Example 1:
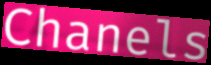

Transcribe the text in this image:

Chanels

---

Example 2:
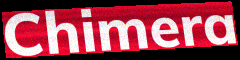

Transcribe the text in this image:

Chimera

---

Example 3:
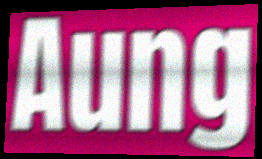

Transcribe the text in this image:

Aung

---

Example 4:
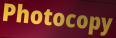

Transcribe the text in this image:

Photocopy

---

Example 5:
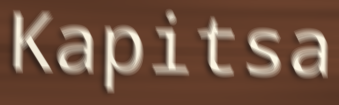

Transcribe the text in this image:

Kapitsa